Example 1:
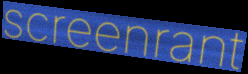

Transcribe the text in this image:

screenrant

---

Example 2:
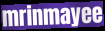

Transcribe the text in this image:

mrinmayee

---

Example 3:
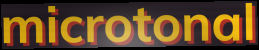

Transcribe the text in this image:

microtonal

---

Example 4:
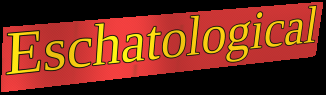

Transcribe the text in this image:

Eschatological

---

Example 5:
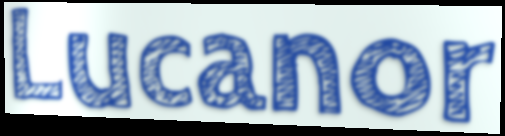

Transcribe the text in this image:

Lucanor